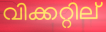
വിക്കറ്റില്